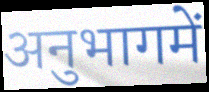
अनुभागमें